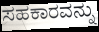
ಸಹಕಾರವನ್ನು